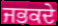
ਜਭਕਦੇ